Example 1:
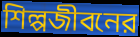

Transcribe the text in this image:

শিল্পজীবনের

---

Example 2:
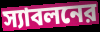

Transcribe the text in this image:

স্যাবলনের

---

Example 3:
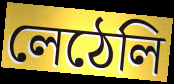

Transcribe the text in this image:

লেঠেলি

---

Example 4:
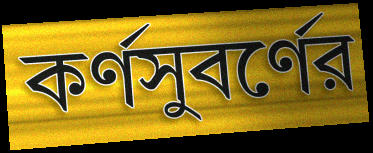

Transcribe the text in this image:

কর্ণসুবর্ণের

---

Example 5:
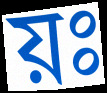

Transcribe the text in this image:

য়ঃ